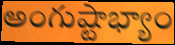
అంగుష్టాభ్యాం